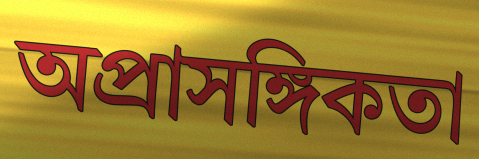
অপ্রাসঙ্গিকতা